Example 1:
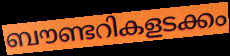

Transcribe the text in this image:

ബൗണ്ടറികളടക്കം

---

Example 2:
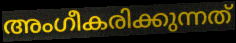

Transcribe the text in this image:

അംഗീകരിക്കുന്നത്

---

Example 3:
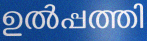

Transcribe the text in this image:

ഉൽപ്പത്തി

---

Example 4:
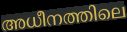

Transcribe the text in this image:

അധീനത്തിലെ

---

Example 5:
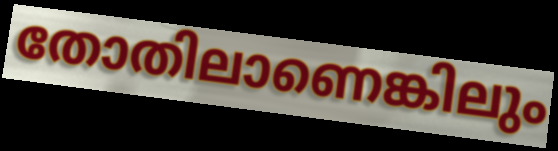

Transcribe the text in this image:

തോതിലാണെങ്കിലും